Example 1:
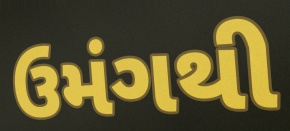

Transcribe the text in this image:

ઉમંગથી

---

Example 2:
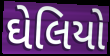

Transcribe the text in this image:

ઘેલિયો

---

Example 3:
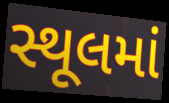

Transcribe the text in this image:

સ્થૂલમાં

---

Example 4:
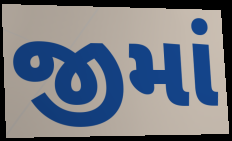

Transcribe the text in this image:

જીમાં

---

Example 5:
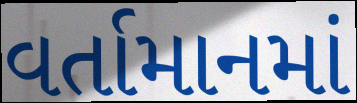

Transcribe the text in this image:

વર્તામાનમાં